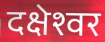
दक्षेश्वर